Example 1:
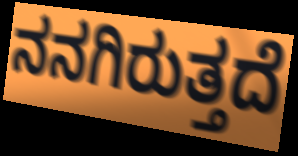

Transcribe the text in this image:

ನನಗಿರುತ್ತದೆ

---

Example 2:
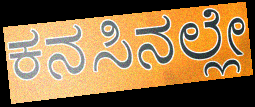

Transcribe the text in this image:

ಕನಸಿನಲ್ಲೇ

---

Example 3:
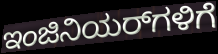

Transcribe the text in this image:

ಇಂಜಿನಿಯರ್‌ಗಳಿಗೆ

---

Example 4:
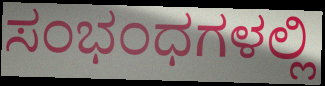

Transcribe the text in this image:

ಸಂಭಂಧಗಳಲ್ಲಿ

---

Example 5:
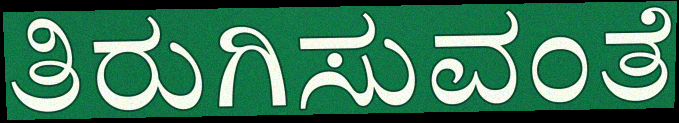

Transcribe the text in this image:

ತಿರುಗಿಸುವಂತೆ